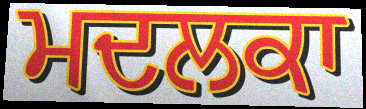
ਮਦਲਕਾ